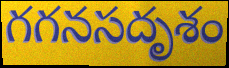
గగనసదృశం